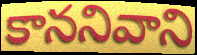
కాననివాని